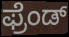
ಫ್ರೆಂಡ್